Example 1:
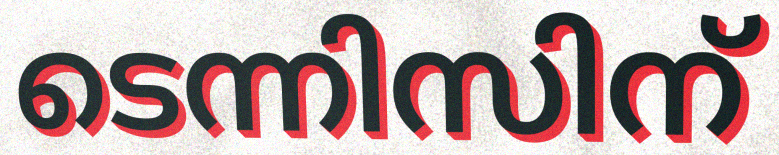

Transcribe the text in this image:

ടെന്നിസിന്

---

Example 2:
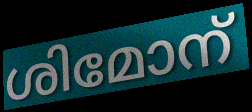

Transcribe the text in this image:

ശിമോന്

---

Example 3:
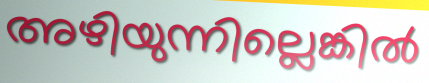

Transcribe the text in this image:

അഴിയുന്നില്ലെങ്കിൽ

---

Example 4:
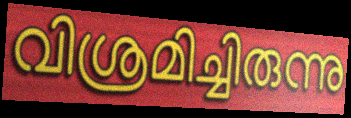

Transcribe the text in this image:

വിശ്രമിച്ചിരുന്നു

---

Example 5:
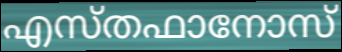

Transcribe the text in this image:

എസ്തഫാനോസ്